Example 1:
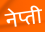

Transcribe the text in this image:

नेप्ती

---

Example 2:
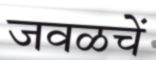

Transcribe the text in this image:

जवळचें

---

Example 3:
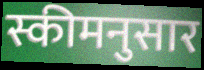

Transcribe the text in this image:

स्कीमनुसार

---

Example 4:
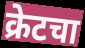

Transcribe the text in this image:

क्रेटचा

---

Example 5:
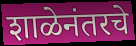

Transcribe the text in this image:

शाळेनंतरचे